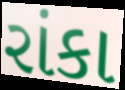
રાંકા